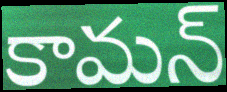
కామన్